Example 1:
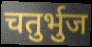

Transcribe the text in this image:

चतुर्भुज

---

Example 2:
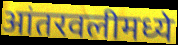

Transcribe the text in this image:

आंतरवलीमध्ये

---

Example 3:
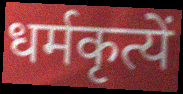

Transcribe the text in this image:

धर्मकृत्यें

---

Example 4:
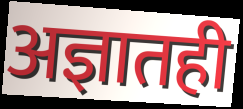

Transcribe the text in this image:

अज्ञातही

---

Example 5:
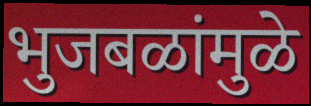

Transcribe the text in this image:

भुजबळांमुळे